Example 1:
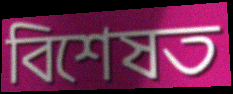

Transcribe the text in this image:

বিশেষত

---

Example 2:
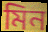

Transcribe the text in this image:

মিন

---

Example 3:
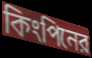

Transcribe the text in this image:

কিংপিনের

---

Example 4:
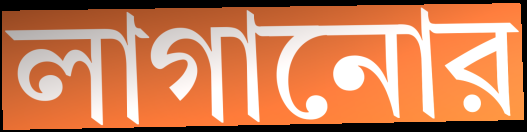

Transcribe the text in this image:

লাগানোর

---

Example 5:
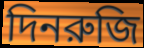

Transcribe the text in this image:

দিনরুজি